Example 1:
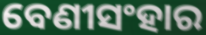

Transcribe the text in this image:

ବେଣୀସଂହାର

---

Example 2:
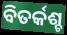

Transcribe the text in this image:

ବିତର୍କଶ୍ଚ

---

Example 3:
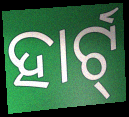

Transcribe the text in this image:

ହାର୍ଟ୍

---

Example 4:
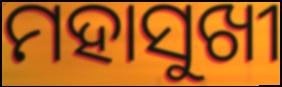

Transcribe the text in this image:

ମହାସୁଖୀ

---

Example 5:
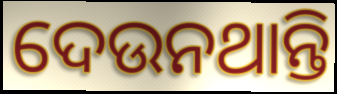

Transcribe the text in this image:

ଦେଉନଥାନ୍ତି